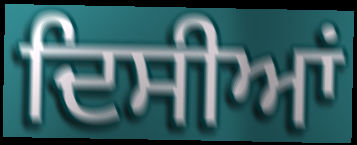
ਦਿਸੀਆਂ